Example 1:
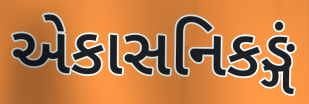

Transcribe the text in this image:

એકાસનિકઙ્ગં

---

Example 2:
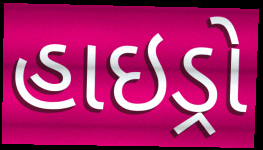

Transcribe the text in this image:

હાઇડ્રો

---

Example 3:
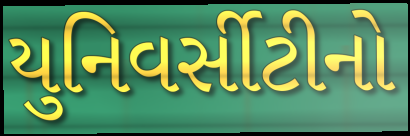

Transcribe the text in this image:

યુનિવર્સીટીનો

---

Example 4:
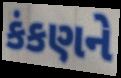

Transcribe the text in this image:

કંકણને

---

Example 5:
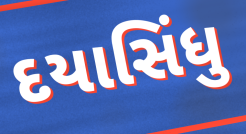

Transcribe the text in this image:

દયાસિંધુ